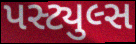
પસ્ટ્યુલ્સ